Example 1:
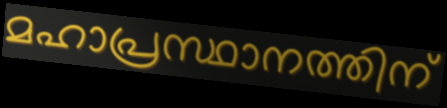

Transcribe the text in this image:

മഹാപ്രസ്ഥാനത്തിന്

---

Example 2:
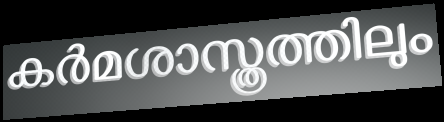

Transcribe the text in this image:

കർമശാസ്ത്രത്തിലും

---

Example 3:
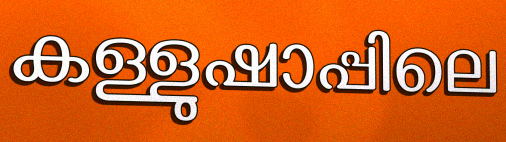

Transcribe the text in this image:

കള്ളുഷാപ്പിലെ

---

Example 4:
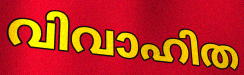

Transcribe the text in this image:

വിവാഹിത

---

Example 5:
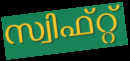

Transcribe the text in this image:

സ്വിഫ്റ്റ്